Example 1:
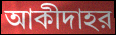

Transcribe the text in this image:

আকীদাহর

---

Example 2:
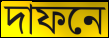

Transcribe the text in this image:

দাফনে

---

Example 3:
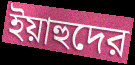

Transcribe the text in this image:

ইয়াহুদের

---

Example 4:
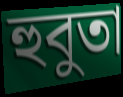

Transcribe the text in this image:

হুবুতা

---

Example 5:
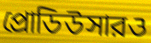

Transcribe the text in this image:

প্রোডিউসারও